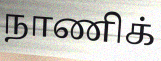
நாணிக்